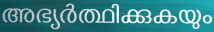
അഭ്യർത്ഥിക്കുകയും